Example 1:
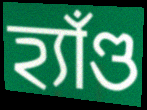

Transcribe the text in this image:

হ্যাঁণ্ড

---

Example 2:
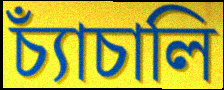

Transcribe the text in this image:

চ্যাঁচালি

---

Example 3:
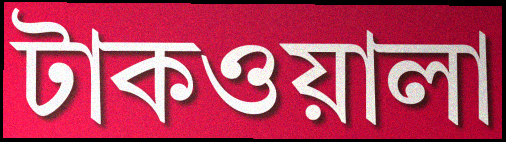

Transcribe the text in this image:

টাকওয়ালা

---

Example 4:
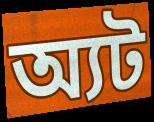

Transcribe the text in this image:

অ্যট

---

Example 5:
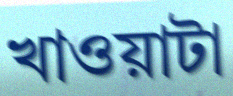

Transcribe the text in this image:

খাওয়াটা